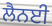
ਲੈਨਈ